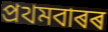
প্ৰথমবাৰৰ